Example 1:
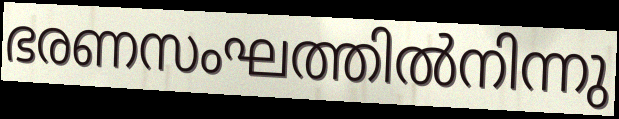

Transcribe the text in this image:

ഭരണസംഘത്തിൽനിന്നു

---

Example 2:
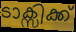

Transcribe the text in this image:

ടാക്സിക്ക്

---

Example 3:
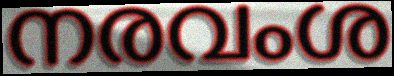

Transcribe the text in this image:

നരവംശ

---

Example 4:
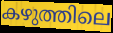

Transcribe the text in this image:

കഴുത്തിലെ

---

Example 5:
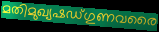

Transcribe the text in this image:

മതിമുഖ്യഷഡ്ഗുണവരൈ